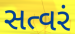
સત્વરં